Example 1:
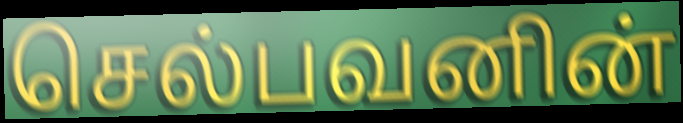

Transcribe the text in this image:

செல்பவனின்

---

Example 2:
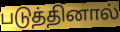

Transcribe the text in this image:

படுத்தினால்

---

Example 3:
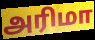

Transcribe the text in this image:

அரிமா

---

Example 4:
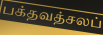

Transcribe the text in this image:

பக்தவத்சலப்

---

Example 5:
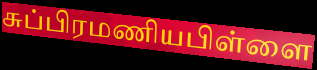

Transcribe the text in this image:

சுப்பிரமணியபிள்ளை